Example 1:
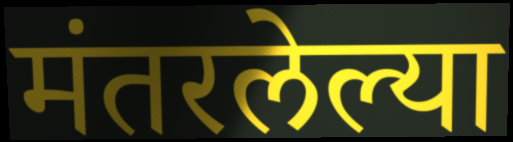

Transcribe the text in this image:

मंतरलेल्या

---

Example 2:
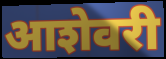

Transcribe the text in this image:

आशेवरी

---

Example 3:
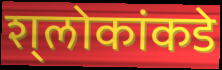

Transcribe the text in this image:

श्लोकांकडे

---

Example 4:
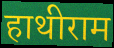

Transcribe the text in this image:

हाथीराम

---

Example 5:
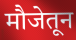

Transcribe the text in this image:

मौजेतून